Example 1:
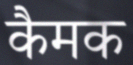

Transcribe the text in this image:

कैमक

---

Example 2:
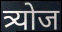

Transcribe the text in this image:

त्र्योज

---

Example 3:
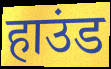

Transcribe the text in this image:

हाउंड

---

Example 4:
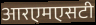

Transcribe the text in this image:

आरएमएसटी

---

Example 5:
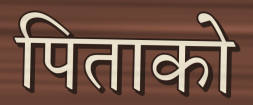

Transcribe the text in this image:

पिताको